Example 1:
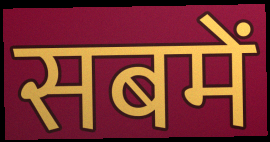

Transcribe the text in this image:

सबमें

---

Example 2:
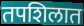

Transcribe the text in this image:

तपशिलात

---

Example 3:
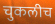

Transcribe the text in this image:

चुकलीच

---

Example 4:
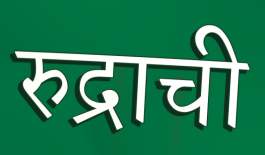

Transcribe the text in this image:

रुद्राची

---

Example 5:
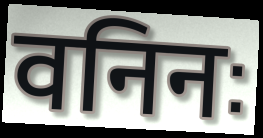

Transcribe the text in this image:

वनिनः